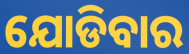
ଯୋଡିବାର